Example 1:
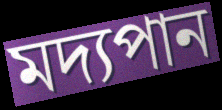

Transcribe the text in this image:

মদ্যপান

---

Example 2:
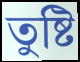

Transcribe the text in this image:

তুষ্টি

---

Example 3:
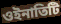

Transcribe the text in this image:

ওইনাতিটি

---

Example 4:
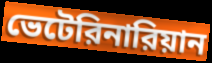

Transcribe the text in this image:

ভেটেরিনারিয়ান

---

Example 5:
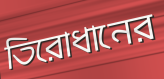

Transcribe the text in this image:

তিরোধানের